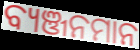
ବ୍ୟଞ୍ଜନମାନ